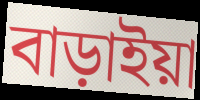
বাড়াইয়া